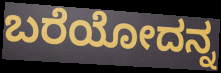
ಬರೆಯೋದನ್ನ